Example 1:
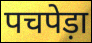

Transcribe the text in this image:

पचपेड़ा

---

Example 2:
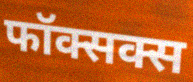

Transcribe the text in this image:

फॉक्सक्स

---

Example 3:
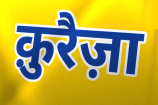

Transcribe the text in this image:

क़ुरैज़ा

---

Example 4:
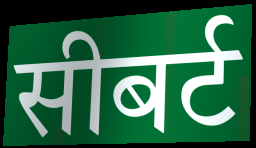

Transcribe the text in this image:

सीबर्ट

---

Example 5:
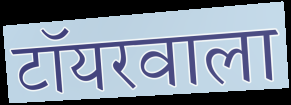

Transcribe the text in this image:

टॉयरवाला